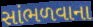
સાંભળવાના